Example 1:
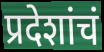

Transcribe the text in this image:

प्रदेशांचं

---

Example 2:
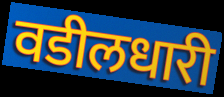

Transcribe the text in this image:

वडीलधारी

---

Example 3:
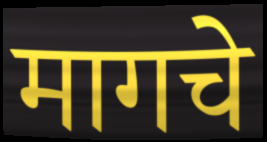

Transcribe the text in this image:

मागचे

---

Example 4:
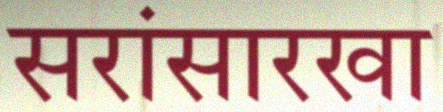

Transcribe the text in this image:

सरांसारखा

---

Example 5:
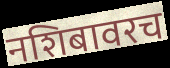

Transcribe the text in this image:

नशिबावरच